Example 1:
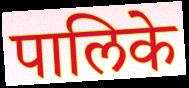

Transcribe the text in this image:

पालिके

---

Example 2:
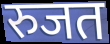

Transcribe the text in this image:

रुजत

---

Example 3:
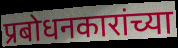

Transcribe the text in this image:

प्रबोधनकारांच्या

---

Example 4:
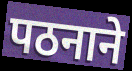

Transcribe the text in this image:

पठनाने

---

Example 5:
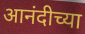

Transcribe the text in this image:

आनंदीच्या